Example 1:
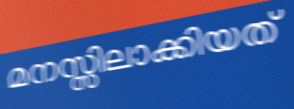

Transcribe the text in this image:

മനസ്സിലാക്കിയത്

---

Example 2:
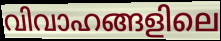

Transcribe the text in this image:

വിവാഹങ്ങളിലെ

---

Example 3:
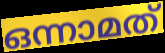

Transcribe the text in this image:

ഒന്നാമത്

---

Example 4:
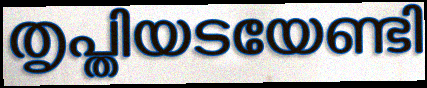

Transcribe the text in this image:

തൃപ്തിയടയേണ്ടി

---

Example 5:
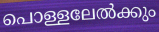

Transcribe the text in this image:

പൊള്ളലേൽക്കും